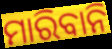
ମାରିବାନି